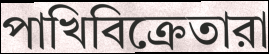
পাখিবিক্রেতারা